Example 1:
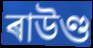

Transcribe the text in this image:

ৰাউণ্ড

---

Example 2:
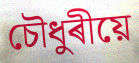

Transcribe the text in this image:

চৌধুৰীয়ে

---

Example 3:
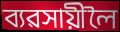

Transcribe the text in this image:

ব্যৱসায়ীলৈ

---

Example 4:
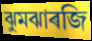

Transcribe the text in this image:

ঝুমঝাৰজি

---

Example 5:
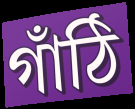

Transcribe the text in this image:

গাঁঠি